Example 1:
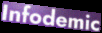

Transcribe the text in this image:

Infodemic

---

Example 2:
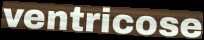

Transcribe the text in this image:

ventricose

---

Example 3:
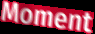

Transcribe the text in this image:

Moment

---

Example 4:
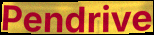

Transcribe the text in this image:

Pendrive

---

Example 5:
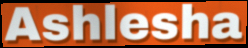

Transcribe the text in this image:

Ashlesha